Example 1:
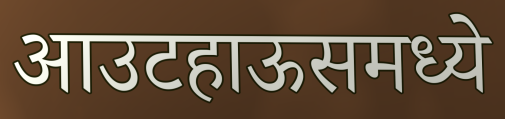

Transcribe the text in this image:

आउटहाऊसमध्ये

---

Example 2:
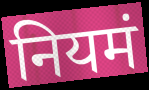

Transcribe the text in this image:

नियमं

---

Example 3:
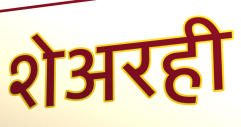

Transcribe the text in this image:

शेअरही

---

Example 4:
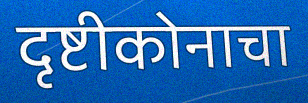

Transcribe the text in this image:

दृष्टीकोनाचा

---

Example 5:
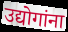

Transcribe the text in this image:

उद्योगांना